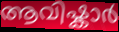
ആവിഷ്കാർ